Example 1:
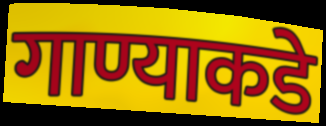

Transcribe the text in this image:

गाण्याकडे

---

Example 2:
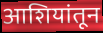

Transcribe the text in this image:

आशियांतून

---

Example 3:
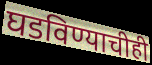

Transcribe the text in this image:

घडविण्याचीही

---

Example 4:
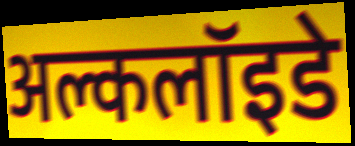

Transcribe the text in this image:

अल्कलॉइडे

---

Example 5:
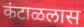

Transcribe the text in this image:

कंटाळलास